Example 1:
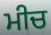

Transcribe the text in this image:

ਮੀਚ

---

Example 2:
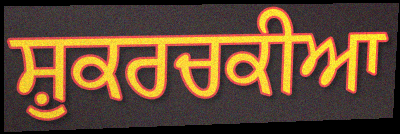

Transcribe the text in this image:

ਸ਼ੁਕਰਚਕੀਆ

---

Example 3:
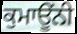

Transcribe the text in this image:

ਕੁਮਾਊਂਨੀ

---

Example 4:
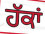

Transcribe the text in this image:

ਹੱਕਾਂ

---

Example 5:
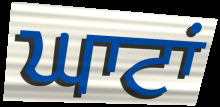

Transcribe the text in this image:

ਘਾਟਾਂ